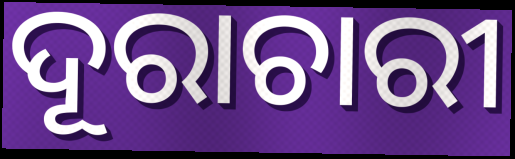
ଦୂରାଚାରୀ